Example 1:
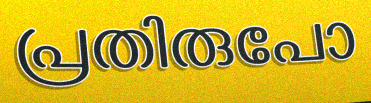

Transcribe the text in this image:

പ്രതിരുപോ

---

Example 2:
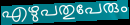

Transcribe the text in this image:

എഴുപതുപേരും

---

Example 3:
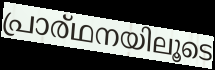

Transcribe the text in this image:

പ്രാര്ഥനയിലൂടെ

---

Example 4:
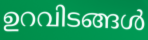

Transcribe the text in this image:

ഉറവിടങ്ങൾ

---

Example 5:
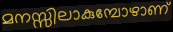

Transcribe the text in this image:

മനസ്സിലാകുമ്പോഴാണ്